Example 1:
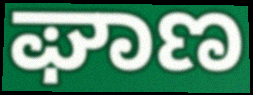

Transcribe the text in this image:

ಘಾಣ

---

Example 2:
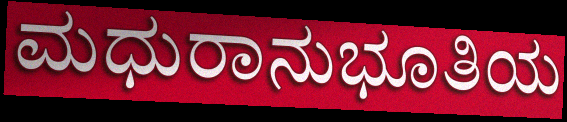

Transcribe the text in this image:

ಮಧುರಾನುಭೂತಿಯ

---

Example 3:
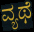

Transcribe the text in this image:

ವ್ಯಥೆ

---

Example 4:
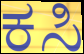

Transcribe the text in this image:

ಕಸಿ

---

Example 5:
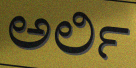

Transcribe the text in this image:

ಅರ್ಲಿ